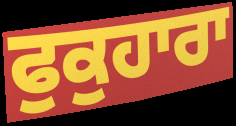
ਫੁਕੁਹਾਰਾ